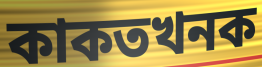
কাকতখনক